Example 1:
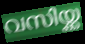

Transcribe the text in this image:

വസിയ്ക്ക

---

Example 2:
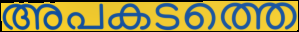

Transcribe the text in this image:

അപകടത്തെ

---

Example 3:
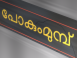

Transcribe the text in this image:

പോകുംമുമ്പ്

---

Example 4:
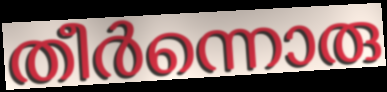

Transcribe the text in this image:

തീർന്നൊരു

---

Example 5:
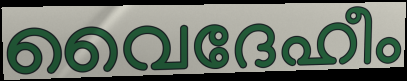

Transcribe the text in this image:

വൈദേഹീം